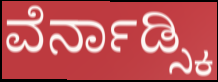
ವೆರ್ನಾಡ್ಸ್ಕಿ